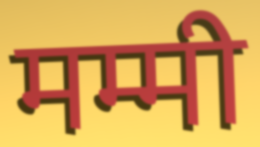
मम्‍मी